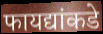
फायद्यांकडे